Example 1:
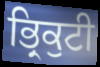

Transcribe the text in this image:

ਭ੍ਰਿਕੁਟੀ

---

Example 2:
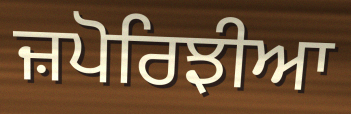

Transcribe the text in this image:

ਜ਼ਪੋਰਿਝੀਆ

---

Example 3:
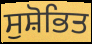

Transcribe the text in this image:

ਸੁਸ਼ੋਭਿਤ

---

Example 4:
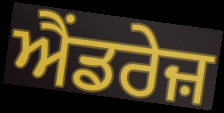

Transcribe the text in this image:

ਐਂਡਰੇਜ਼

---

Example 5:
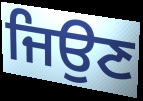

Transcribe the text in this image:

ਜਿਉਣ